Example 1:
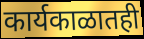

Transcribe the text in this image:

कार्यकाळातही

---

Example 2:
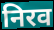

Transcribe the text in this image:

निरव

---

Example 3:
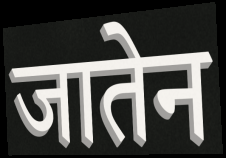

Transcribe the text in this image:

जातेन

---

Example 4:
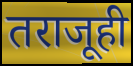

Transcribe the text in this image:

तराजूही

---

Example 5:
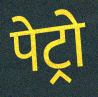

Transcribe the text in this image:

पेट्रो